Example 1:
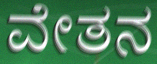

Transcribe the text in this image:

ವೇತನ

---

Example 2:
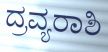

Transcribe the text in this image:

ದ್ರವ್ಯರಾಶಿ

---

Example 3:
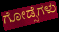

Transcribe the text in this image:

ಗೋಡ್ಸೆಗಳು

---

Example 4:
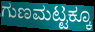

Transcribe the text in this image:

ಗುಣಮಟ್ಟಕ್ಕೂ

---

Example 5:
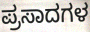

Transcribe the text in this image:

ಪ್ರಸಾದಗಳ